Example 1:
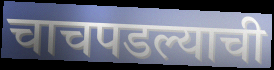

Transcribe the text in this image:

चाचपडल्याची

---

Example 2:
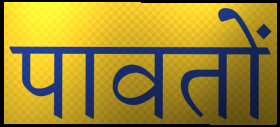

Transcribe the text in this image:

पावतों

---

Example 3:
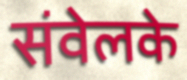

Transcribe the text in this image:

संवेलके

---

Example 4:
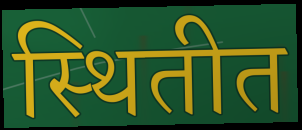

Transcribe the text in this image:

स्थितीत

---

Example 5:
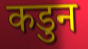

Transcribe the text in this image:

कडुन